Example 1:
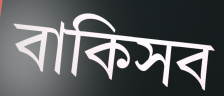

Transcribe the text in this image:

বাকিসব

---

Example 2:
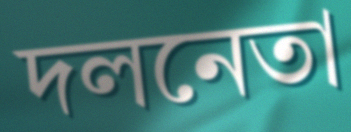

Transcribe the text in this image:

দলনেতা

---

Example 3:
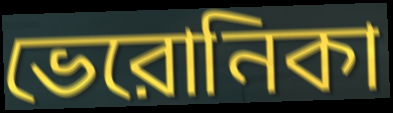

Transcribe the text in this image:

ভেরোনিকা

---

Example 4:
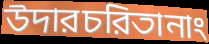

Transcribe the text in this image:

উদারচরিতানাং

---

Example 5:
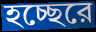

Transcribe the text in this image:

হচ্ছেরে